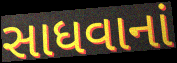
સાધવાનાં